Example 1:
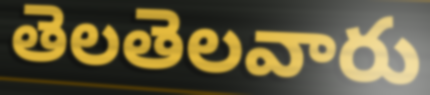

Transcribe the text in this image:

తెలతెలవారు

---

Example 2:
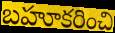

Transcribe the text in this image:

బహూకరించి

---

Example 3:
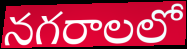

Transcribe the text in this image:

నగరాలలో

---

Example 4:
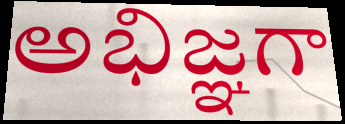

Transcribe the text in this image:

అభిజ్ఞగా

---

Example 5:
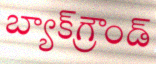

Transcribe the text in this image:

బ్యాక్‌గ్రౌండ్